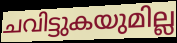
ചവിട്ടുകയുമില്ല